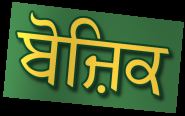
ਬੋਜ਼ਿਕ